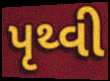
પૃથ્વી